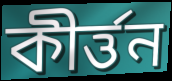
কীর্ত্তন